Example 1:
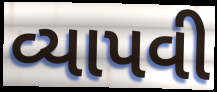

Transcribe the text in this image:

વ્યાપવી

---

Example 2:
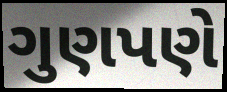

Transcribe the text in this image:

ગુણપણે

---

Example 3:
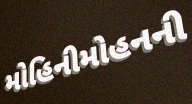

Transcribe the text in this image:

મોહિનીમોહનની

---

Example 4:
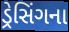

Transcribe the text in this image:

ડ્રેસિંગના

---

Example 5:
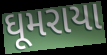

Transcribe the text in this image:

ઘૂમરાયા